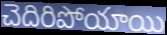
చెదిరిపోయాయి